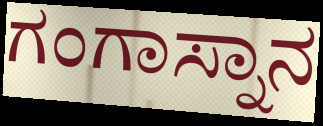
ಗಂಗಾಸ್ನಾನ